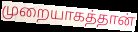
முறையாகத்தான்